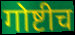
गोष्टीच